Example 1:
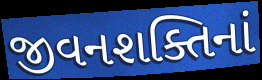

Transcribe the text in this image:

જીવનશક્તિનાં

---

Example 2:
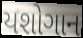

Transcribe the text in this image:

યશોગાન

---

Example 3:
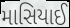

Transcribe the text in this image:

માસિયાઈ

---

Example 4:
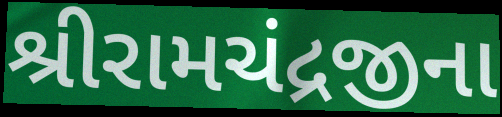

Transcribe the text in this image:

શ્રીરામચંદ્રજીના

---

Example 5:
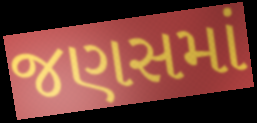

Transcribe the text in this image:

જણસમાં